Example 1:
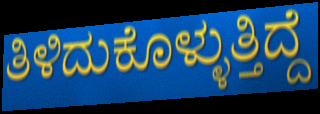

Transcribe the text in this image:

ತಿಳಿದುಕೊಳ್ಳುತ್ತಿದ್ದೆ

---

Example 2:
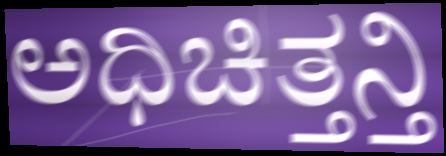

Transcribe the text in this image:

ಅಧಿಚಿತ್ತನ್ತಿ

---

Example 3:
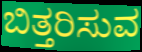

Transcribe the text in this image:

ಬಿತ್ತರಿಸುವ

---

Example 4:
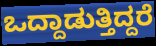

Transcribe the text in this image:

ಒದ್ದಾಡುತ್ತಿದ್ದರೆ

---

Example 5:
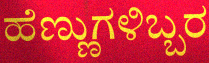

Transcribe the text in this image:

ಹೆಣ್ಣುಗಳಿಬ್ಬರ